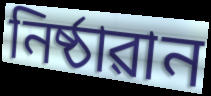
নিষ্ঠাৱান